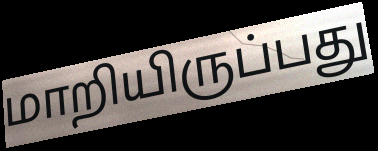
மாறியிருப்பது